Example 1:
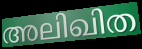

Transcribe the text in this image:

അലിഖിത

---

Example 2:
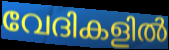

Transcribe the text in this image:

വേദികളിൽ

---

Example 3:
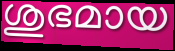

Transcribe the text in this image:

ശുഭമായ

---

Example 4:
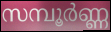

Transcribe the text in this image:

സമ്പൂർണ്ണ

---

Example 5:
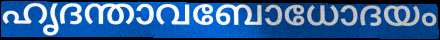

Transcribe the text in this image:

ഹൃദന്താവബോധോദയം